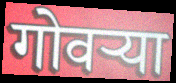
गोवर्‍या